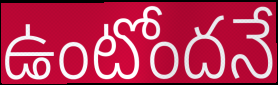
ఉంటోందనే